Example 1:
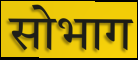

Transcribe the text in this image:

सोभाग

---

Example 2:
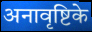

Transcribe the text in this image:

अनावृष्टिके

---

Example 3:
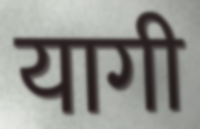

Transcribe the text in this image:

यागी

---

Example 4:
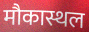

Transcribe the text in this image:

मौकास्थल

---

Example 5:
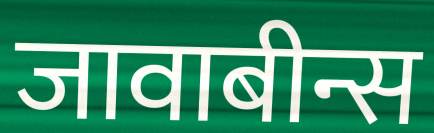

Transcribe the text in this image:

जावाबीन्स